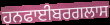
ਹਨਫਾਈਬਰਗਲਾਸ